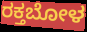
ರಕ್ತಬೋಳ